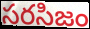
సరసిజం